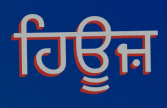
ਹਿਊਜ਼